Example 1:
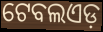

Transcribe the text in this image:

ଟେବଲଏଡ଼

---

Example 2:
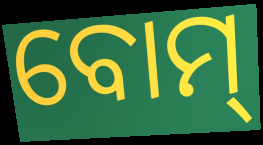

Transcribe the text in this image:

ବୋମ୍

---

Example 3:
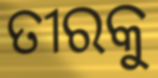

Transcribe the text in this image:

ତୀରକୁ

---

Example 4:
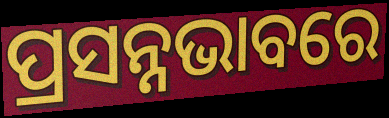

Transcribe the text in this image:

ପ୍ରସନ୍ନଭାବରେ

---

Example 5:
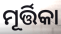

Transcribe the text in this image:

ମୂର୍ତ୍ତିକା